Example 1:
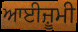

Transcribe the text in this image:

ਆਈਜ਼ੂਮੀ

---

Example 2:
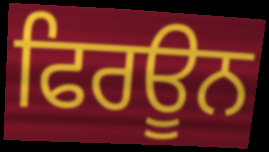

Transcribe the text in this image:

ਫਿਰਊਨ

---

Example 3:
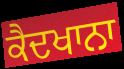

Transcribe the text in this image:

ਕੈਦਖਾਨਾ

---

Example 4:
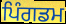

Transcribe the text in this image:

ਪਿੰਗਡਮ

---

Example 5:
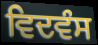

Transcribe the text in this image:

ਵਿਦਵੰਸ